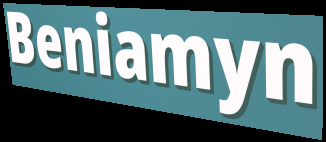
Beniamyn